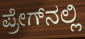
ಪ್ರೇಗ್‌ನಲ್ಲಿ